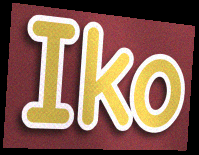
Iko